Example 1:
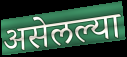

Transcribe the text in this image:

असेलल्या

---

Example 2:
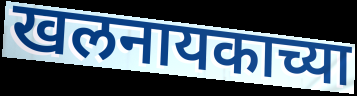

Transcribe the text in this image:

खलनायकाच्या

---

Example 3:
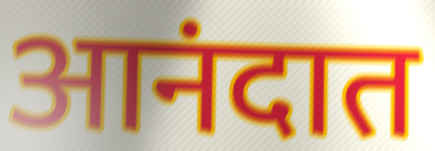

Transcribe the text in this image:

आनंदात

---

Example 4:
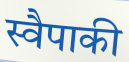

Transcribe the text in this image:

स्वैपाकी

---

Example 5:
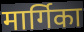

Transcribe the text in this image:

मार्गिका